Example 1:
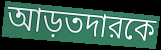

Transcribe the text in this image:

আড়তদারকে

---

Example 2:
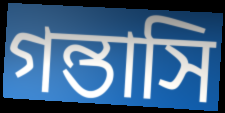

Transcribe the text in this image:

গন্তাসি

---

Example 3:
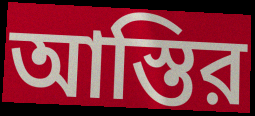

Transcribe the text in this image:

আস্তির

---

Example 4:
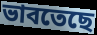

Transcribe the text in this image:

ভাবতেছে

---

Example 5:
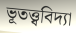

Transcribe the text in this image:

ভূতত্ত্ববিদ্যা